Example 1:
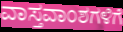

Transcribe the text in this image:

ವಾಸ್ತವಾಂಶಗಳಿಗೆ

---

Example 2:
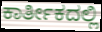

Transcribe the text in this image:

ಕಾರ್ತೀಕದಲ್ಲಿ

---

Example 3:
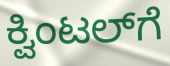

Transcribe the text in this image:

ಕ್ವಿಂಟಲ್‌ಗೆ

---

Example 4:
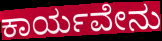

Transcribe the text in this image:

ಕಾರ್ಯವೇನು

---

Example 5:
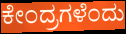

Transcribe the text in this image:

ಕೇಂದ್ರಗಳೆಂದು